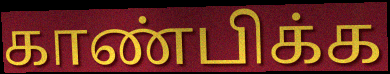
காண்பிக்க